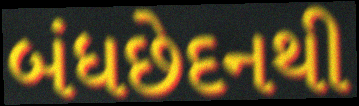
બંધછેદનથી